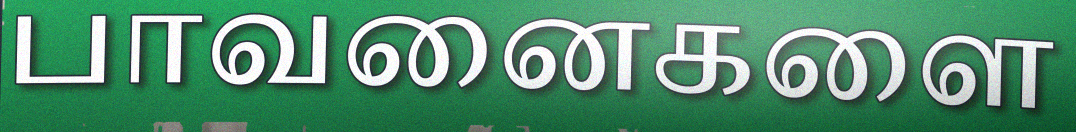
பாவனைகளை